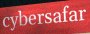
cybersafar